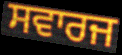
ਸਵਾਰਜ